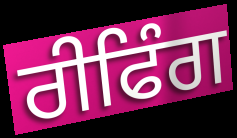
ਰੀਫਿੰਗ